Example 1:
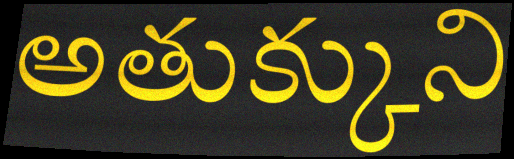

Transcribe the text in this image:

అతుక్కుని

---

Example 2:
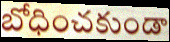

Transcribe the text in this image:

బోధించకుండా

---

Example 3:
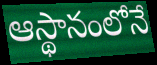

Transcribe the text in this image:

ఆస్థానంలోనే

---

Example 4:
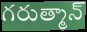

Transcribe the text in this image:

గరుత్మాన్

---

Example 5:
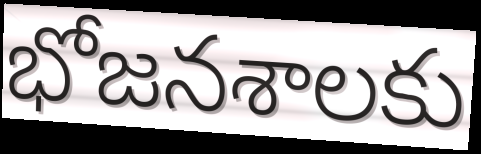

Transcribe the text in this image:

భోజనశాలకు